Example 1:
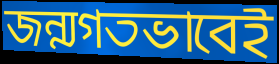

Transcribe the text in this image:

জন্মগতভাবেই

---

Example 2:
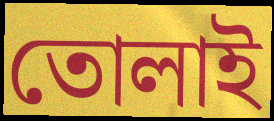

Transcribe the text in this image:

তোলাই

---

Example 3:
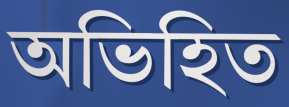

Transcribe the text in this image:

অভিহিত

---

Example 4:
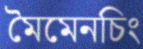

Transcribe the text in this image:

মৈমেনচিং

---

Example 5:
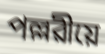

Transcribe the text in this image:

পল্লৱীয়ে